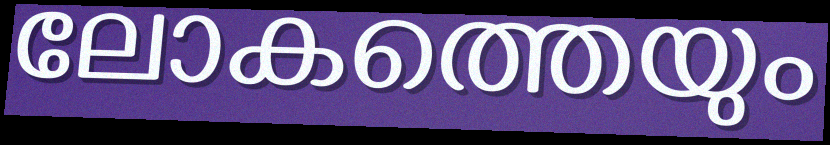
ലോകത്തെയും